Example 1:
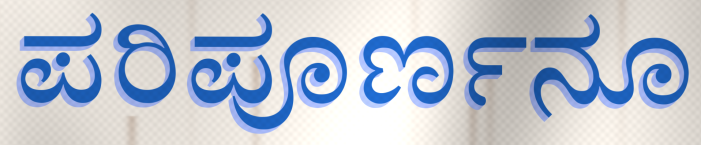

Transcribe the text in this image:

ಪರಿಪೂರ್ಣನೂ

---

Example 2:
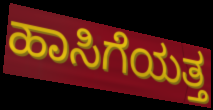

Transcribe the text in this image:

ಹಾಸಿಗೆಯತ್ತ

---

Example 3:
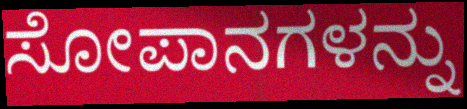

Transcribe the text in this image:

ಸೋಪಾನಗಳನ್ನು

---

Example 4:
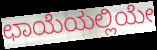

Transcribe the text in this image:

ಛಾಯೆಯಲ್ಲಿಯೇ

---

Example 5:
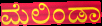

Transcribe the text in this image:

ಮೆಲಿಂಡಾ